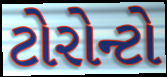
ટોરોન્ટો